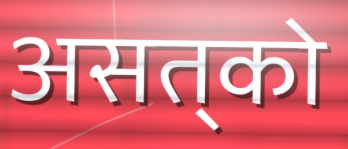
असत्‌को